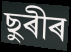
ছুৰীৰ